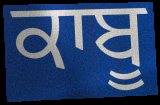
ਕਾਬੂ